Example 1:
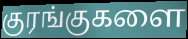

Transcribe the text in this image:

குரங்குகளை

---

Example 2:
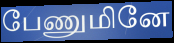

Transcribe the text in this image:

பேணுமினே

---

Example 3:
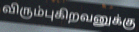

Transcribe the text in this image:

விரும்புகிறவனுக்கு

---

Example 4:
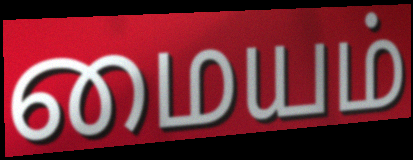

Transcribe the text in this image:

மையம்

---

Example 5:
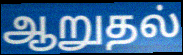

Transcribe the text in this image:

ஆறுதல்